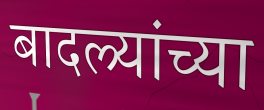
बादल्यांच्या